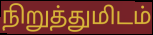
நிறுத்துமிடம்